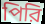
পিরি